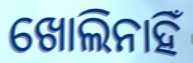
ଖୋଲିନାହିଁ